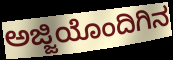
ಅಜ್ಜಿಯೊಂದಿಗಿನ